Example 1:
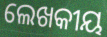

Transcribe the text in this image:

ଲେଖକୀୟ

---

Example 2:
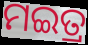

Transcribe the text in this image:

ମଇତ୍ର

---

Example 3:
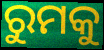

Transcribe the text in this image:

ରୁମକୁ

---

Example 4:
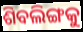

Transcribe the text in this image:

ଶିବଲିଙ୍ଗକୁ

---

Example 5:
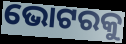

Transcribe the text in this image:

ଭୋଟରକୁ